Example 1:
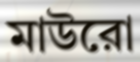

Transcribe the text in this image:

মাউরো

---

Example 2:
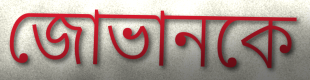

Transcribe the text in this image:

জোভানকে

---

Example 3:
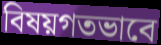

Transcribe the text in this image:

বিষয়গতভাবে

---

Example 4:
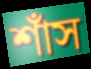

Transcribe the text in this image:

শাঁস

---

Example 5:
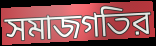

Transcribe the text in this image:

সমাজগতির